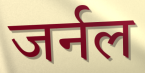
जर्नल